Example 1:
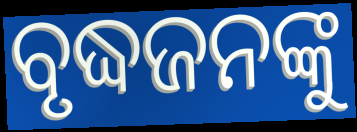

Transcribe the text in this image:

ବୃଦ୍ଧଜନଙ୍କୁ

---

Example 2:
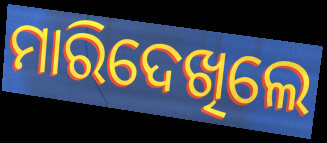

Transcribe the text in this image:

ମାରିଦେଖିଲେ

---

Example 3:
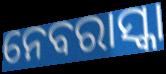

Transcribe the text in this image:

ନେବରାସ୍କା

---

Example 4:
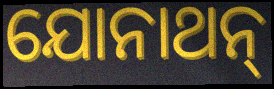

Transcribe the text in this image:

ଯୋନାଥନ୍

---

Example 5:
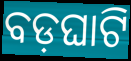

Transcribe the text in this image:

ବଡ଼ଘାଟି